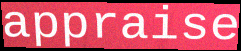
appraise